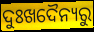
ଦୁଃଖଦୈନ୍ୟରୁ